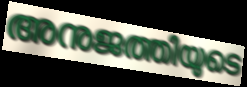
അനുജത്തിയുടെ